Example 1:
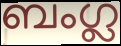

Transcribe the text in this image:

ബംഗ്ല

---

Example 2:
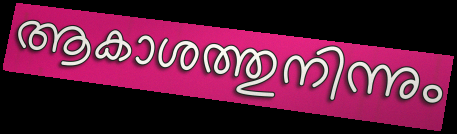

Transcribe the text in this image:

ആകാശത്തുനിന്നും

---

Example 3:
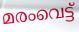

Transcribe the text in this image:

മരംവെട്ട്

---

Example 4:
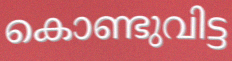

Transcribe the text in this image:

കൊണ്ടുവിട്ട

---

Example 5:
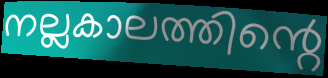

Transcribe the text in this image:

നല്ലകാലത്തിന്റെ